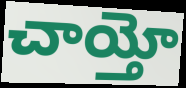
చాయ్తో